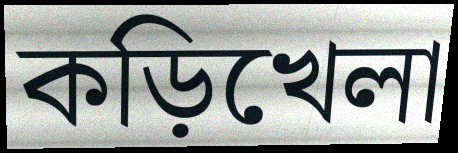
কড়িখেলা